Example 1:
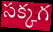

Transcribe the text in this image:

సక్కగ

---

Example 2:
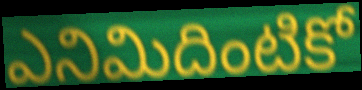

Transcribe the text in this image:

ఎనిమిదింటికో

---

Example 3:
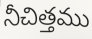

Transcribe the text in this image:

నీచిత్తము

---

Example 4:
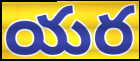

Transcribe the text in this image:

యర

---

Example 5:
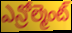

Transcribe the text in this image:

ఎన్రోల్మెంట్